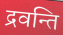
द्रवन्ति